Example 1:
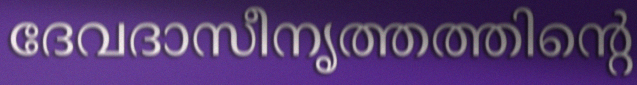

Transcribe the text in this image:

ദേവദാസീനൃത്തത്തിന്റെ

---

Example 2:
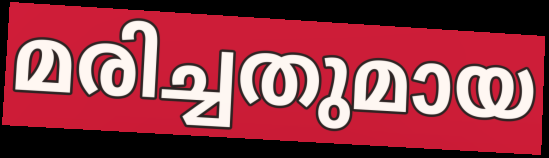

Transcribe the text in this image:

മരിച്ചതുമായ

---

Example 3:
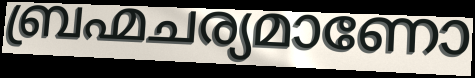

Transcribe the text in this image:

ബ്രഹ്മചര്യമാണോ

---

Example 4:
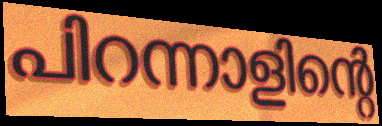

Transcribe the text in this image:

പിറന്നാളിന്റെ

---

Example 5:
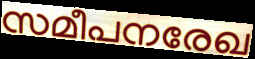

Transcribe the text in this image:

സമീപനരേഖ